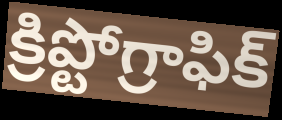
క్రిప్టోగ్రాఫిక్